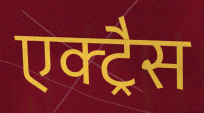
एक्ट्रैस